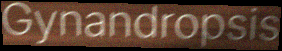
Gynandropsis